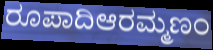
ರೂಪಾದಿಆರಮ್ಮಣಂ